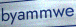
byammwe